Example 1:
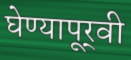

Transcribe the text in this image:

घेण्यापूर्वी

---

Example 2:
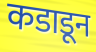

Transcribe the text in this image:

कडाडून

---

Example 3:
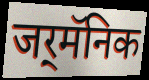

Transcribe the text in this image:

जर्मॅनिक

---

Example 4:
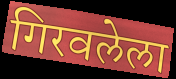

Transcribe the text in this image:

गिरवलेला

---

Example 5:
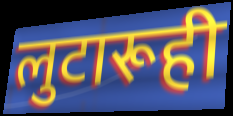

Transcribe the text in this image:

लुटारूही